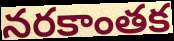
నరకాంతక